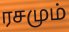
ரசமும்